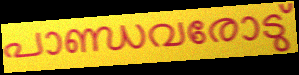
പാണ്ഡവരോടു്